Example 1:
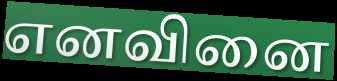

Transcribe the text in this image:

எனவினை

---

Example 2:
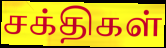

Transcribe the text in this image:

சக்திகள்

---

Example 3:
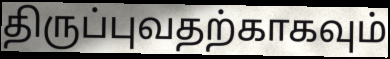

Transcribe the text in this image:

திருப்புவதற்காகவும்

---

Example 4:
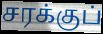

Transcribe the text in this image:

சரக்குப்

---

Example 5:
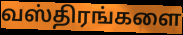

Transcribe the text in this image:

வஸ்திரங்களை